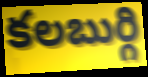
కలబుర్గి